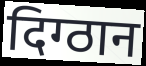
दिग्ठान